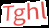
Tghl